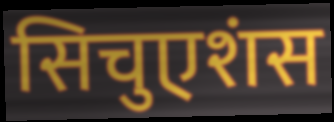
सिचुएशंस